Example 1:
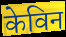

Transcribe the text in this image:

केविन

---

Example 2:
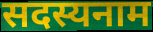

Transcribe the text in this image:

सदस्यनाम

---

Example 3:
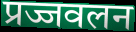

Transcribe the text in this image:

प्रज्‍जवलन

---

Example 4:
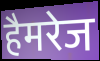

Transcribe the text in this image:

हैमरेज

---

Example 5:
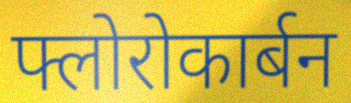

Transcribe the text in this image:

फ्लोरोकार्बन